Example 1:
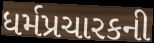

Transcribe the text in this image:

ધર્મપ્રચારકની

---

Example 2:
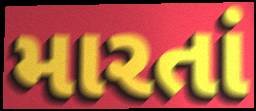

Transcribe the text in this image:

મારતાં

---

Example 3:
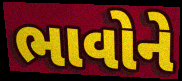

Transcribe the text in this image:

ભાવોને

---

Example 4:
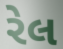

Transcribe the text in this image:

રેલ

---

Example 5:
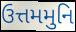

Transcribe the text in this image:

ઉત્તમમુનિ